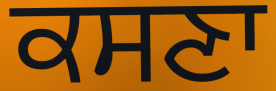
ਕਸਣਾ